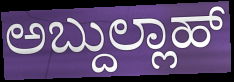
ಅಬ್ದುಲ್ಲಾಹ್